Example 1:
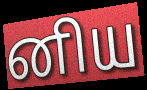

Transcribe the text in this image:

னிய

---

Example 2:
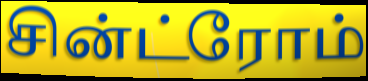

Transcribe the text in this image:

சின்ட்ரோம்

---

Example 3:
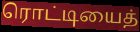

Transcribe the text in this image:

ரொட்டியைத்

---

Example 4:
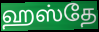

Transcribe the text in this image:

ஹஸ்தே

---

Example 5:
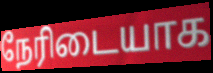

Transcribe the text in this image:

நேரிடையாக